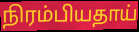
நிரம்பியதாய்